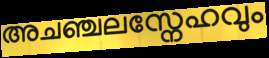
അചഞ്ചലസ്നേഹവും